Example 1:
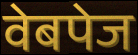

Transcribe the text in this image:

वेबपेज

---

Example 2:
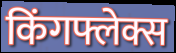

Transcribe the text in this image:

किंगफ्लेक्स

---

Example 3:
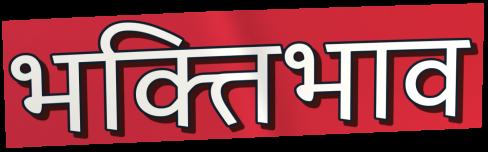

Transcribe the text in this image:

भक्तिभाव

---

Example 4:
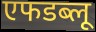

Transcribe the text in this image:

एफडब्लू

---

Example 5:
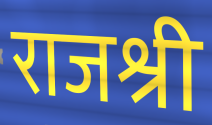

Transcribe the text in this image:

राजश्री